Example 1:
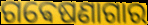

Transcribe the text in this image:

ଗଵେଷଣାଗାର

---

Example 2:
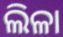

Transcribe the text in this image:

ଲିଳା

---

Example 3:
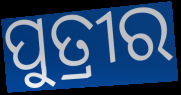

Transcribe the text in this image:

ପୁତ୍ରୀର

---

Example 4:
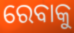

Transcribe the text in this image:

ରେବାକୁ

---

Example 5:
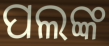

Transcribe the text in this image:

ପଲଙ୍କ